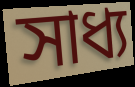
সাধ্য